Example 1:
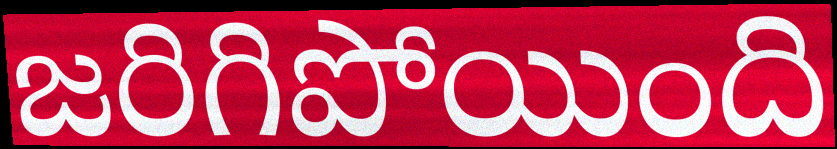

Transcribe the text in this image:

జరిగిపోయింది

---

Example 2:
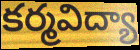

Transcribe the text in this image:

కర్మవిద్యా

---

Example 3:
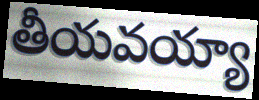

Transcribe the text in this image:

తీయవయ్యా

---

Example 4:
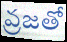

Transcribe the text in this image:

వ్రజతో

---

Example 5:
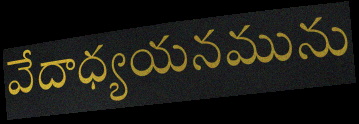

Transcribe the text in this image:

వేదాధ్యయనమును